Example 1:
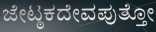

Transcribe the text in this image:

ಜೇಟ್ಠಕದೇವಪುತ್ತೋ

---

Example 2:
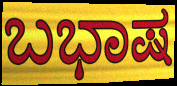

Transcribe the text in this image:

ಬಭಾಷ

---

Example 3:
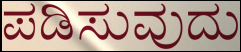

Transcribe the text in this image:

ಪಡಿಸುವುದು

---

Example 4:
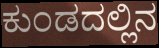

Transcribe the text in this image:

ಕುಂಡದಲ್ಲಿನ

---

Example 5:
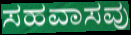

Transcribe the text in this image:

ಸಹವಾಸವು